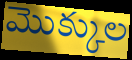
మొక్కుల